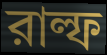
রাল্ফ